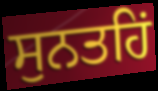
ਸੁਨਤਹਿਂ